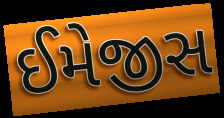
ઈમેજીસ